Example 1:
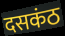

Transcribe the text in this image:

दसकंठ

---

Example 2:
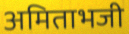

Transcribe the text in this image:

अमिताभजी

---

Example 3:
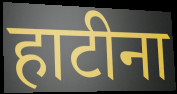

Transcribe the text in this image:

हाटीना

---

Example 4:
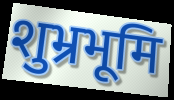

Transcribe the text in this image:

शुभ्रभूमि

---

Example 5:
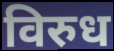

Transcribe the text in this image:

विरुध